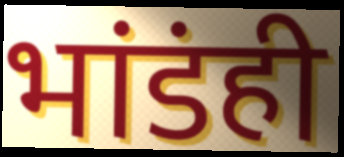
भांडंही